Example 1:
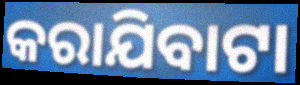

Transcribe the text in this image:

କରାଯିବାଟା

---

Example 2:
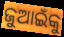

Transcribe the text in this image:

ଜୁଆଇଁକୁ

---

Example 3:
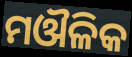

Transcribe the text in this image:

ମଔଳିକ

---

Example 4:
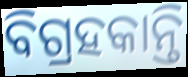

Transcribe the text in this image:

ବିଗ୍ରହକାନ୍ତି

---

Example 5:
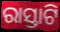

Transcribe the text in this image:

ରାସ୍ତାଟି